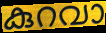
കുറവാ